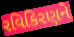
રવિકિરણને